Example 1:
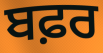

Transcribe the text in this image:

ਬਫ਼ਰ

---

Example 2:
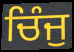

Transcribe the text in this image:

ਚਿੰਜੁ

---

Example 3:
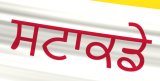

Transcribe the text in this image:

ਸਟਾਕਡੇ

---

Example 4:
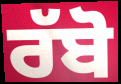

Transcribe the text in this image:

ਰੱਬੋ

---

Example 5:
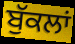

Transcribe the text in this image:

ਬੁੱਕਲਾਂ